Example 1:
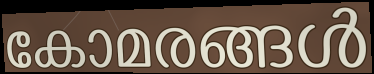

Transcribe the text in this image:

കോമരങ്ങൾ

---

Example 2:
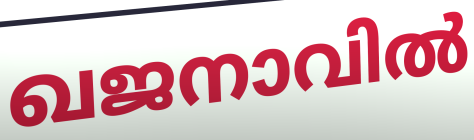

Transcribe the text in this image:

ഖജനാവിൽ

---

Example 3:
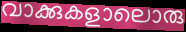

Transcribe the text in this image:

വാക്കുകളാലൊരു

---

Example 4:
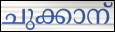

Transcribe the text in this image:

ചുക്കാന്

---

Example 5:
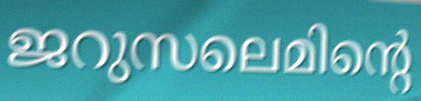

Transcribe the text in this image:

ജറുസലെമിന്റെ